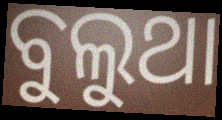
ବୁଲୁଥା